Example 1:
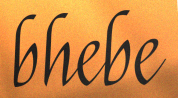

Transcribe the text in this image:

bhebe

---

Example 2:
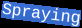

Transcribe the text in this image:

Spraying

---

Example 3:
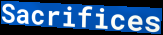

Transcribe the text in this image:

Sacrifices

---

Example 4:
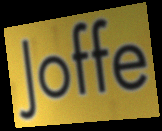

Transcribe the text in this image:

Joffe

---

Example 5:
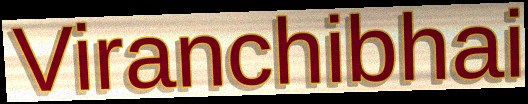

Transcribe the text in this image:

Viranchibhai